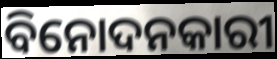
ବିନୋଦନକାରୀ